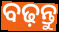
ବଢ଼ନ୍ତୁ